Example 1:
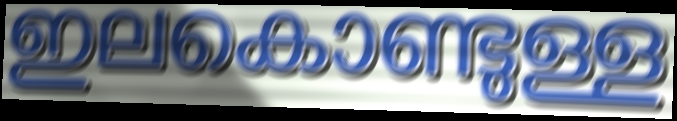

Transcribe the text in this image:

ഇലകൊണ്ടുള്ള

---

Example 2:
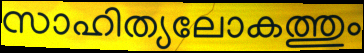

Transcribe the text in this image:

സാഹിത്യലോകത്തും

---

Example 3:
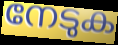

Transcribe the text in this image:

നേടുക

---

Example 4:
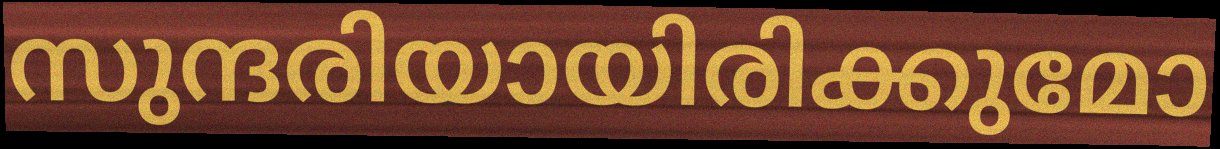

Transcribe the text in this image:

സുന്ദരിയായിരിക്കുമോ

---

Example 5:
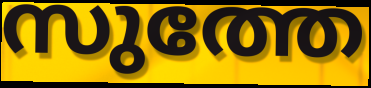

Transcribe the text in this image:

സുത്തേ